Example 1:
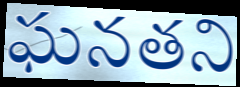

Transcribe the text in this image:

ఘనతని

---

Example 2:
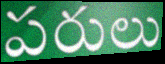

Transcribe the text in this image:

పరులు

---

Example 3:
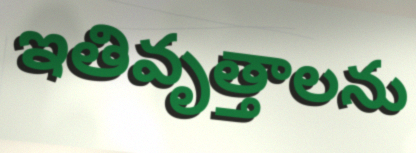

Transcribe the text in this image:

ఇతివృత్తాలను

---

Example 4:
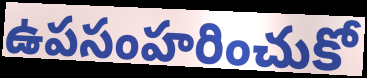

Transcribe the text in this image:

ఉపసంహరించుకో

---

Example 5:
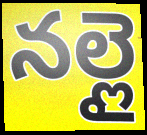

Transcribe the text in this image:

నల్లై